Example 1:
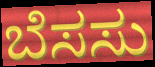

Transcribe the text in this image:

ಬೆಸಸು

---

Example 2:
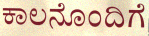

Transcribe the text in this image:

ಕಾಲನೊಂದಿಗೆ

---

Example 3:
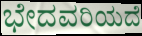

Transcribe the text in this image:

ಭೇದವರಿಯದೆ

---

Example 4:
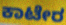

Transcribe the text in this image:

ಕಾಟೇರ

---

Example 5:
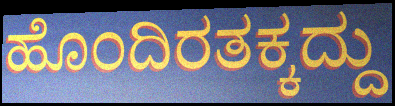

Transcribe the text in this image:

ಹೊಂದಿರತಕ್ಕದ್ದು